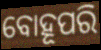
ବୋହୂପରି